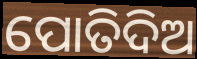
ପୋତିଦିଅ